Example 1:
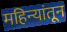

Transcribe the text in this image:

महिन्यांतून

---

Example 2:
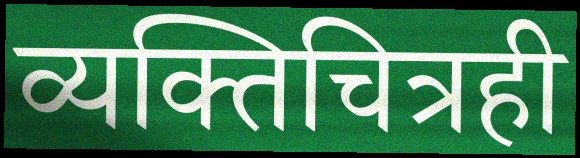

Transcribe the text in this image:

व्यक्तिचित्रही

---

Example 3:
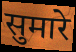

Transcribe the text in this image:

सुमारे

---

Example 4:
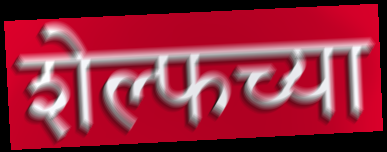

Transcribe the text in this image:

शेल्फच्या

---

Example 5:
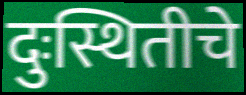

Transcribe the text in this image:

दुःस्थितीचे